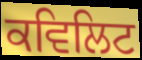
ਕਵਿਲਿਟ